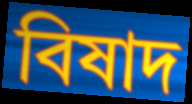
বিষাদ